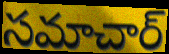
సమాచార్